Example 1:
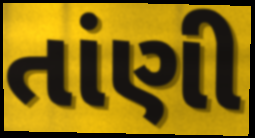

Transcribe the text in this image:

તાંણી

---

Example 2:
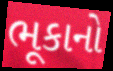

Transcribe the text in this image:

ભૂકાનો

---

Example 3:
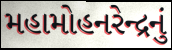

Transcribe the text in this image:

મહામોહનરેન્દ્રનું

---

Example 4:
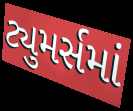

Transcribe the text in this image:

ટ્યુમર્સમાં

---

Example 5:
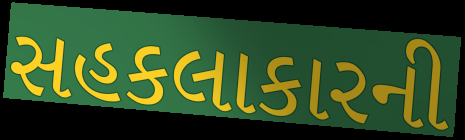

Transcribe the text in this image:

સહકલાકારની